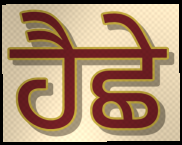
ਹੈਛੇ